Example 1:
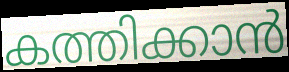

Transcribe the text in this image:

കത്തിക്കാൻ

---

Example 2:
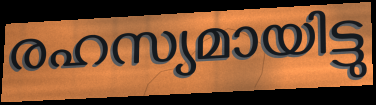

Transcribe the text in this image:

രഹസ്യമായിട്ടു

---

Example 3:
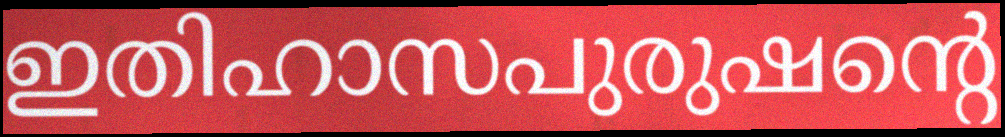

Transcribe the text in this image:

ഇതിഹാസപുരുഷന്റെ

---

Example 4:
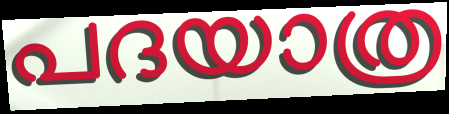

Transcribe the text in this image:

പദയാത്ര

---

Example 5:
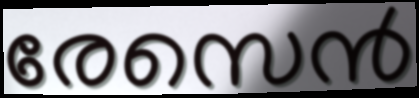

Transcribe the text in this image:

രേസെൻ